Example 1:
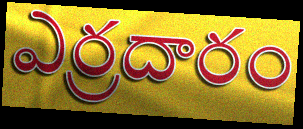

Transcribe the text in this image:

ఎర్రదారం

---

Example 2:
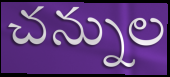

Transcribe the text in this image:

చన్నుల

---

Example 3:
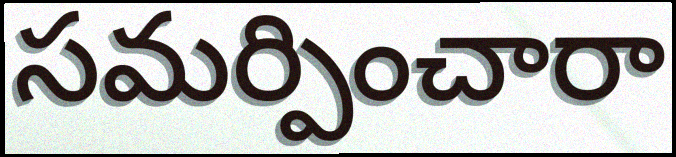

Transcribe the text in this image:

సమర్పించారా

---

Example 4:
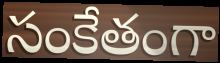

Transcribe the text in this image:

సంకేతంగా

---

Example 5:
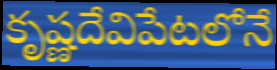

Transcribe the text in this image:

కృష్ణదేవిపేటలోనే